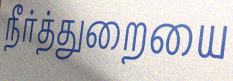
நீர்த்துறையை